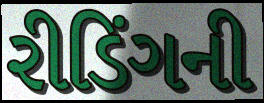
રીડિંગની